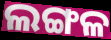
ଲଙ୍ଗଳ